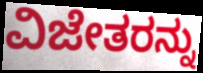
ವಿಜೇತರನ್ನು